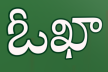
ఓఖా